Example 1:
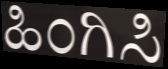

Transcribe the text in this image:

ಹಿಂಗಿಸಿ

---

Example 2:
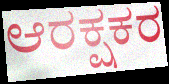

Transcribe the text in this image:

ಆರಕ್ಷಕರ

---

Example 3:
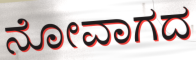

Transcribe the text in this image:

ನೋವಾಗದ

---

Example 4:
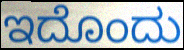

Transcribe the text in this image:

ಇದೊಂದು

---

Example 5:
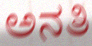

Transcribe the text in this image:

ಅನತಿ